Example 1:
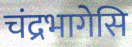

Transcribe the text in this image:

चंद्रभागेसि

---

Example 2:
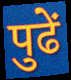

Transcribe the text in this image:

पुढें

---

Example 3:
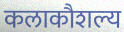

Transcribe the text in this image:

कलाकौशल्य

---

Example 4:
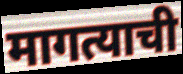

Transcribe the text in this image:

मागत्याची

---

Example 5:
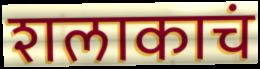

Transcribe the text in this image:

शलाकाचं